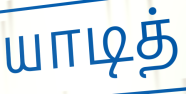
யாடித்